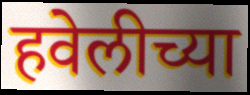
हवेलीच्या